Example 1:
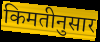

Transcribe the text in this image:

किमतीनुसार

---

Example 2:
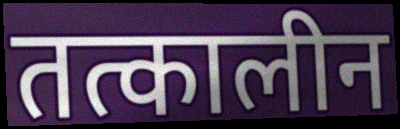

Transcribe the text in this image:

तत्कालीन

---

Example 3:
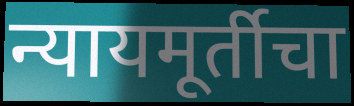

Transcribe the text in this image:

न्यायमूर्तीचा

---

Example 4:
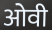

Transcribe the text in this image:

ओवी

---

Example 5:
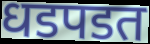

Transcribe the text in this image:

धडपडत